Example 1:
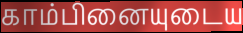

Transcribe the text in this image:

காம்பினையுடைய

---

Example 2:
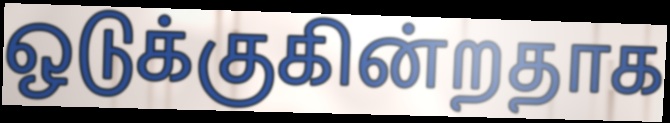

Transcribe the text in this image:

ஒடுக்குகின்றதாக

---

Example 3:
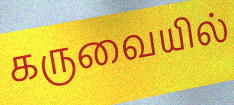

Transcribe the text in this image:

கருவையில்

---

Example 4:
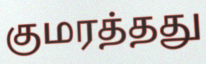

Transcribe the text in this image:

குமரத்தது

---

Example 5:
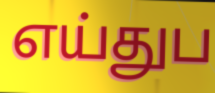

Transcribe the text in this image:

எய்துப